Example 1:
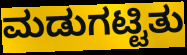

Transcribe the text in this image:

ಮಡುಗಟ್ಟಿತು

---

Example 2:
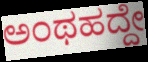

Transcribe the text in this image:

ಅಂಥಹದ್ದೇ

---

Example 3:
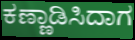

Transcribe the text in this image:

ಕಣ್ಣಾಡಿಸಿದಾಗ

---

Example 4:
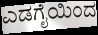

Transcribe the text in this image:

ಎಡಗೈಯಿಂದ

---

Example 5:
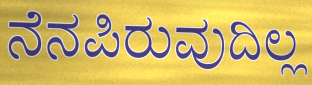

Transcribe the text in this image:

ನೆನಪಿರುವುದಿಲ್ಲ